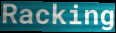
Racking